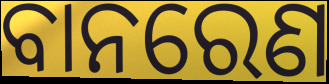
ବାନରେଣ